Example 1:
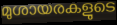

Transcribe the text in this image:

മുശായരകളുടെ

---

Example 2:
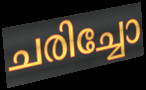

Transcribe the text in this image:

ചരിച്ചോ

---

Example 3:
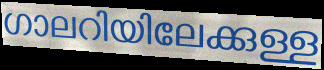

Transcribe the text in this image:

ഗാലറിയിലേക്കുള്ള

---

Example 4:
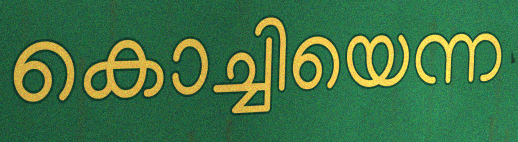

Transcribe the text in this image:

കൊച്ചിയെന്ന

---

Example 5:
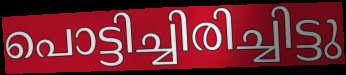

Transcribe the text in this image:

പൊട്ടിച്ചിരിച്ചിട്ടു